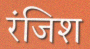
रंजिश